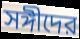
সঙ্গীদের